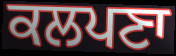
ਕਲਪਣਾ